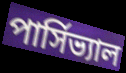
পার্সিভ্যাল